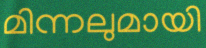
മിന്നലുമായി